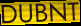
DUBNT